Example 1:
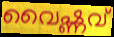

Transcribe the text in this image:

വൈഷ്ണവ്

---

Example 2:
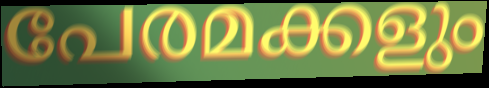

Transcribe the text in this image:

പേരമക്കളും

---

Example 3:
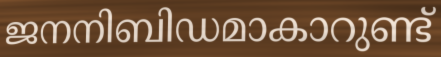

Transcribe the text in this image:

ജനനിബിഡമാകാറുണ്ട്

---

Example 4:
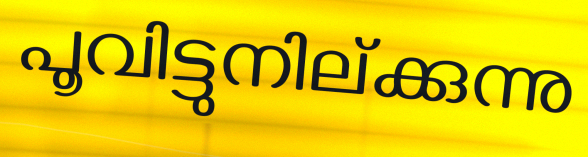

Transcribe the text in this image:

പൂവിട്ടുനില്ക്കുന്നു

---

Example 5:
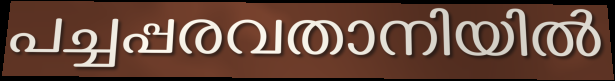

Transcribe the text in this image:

പച്ചപ്പരവതാനിയിൽ